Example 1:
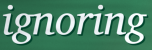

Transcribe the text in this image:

ignoring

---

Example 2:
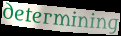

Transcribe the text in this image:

determining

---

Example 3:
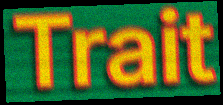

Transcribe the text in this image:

Trait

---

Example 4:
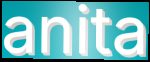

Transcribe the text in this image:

anita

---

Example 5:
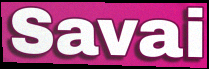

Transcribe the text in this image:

Savai